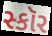
સ્કૉર